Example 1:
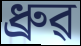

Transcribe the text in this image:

ধ্ৰুৱ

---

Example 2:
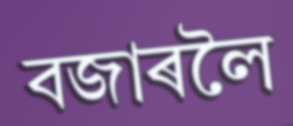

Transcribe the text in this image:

বজাৰলৈ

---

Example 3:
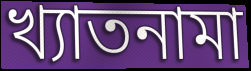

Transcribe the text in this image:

খ্যাতনামা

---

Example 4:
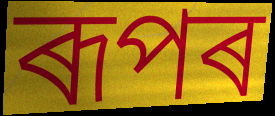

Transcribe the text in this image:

ৰূপৰ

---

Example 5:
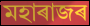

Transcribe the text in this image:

মহাৰাজৰ